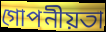
গোপনীয়তা